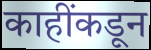
काहींकडून